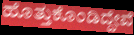
ಹೊತ್ತುಕೊಂಡಿದ್ದೇವೆ